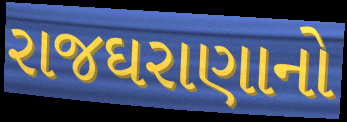
રાજઘરાણાનો